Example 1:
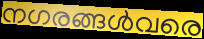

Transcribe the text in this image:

നഗരങ്ങൾവരെ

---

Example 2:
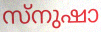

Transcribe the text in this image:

സ്നുഷാ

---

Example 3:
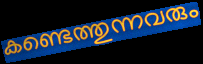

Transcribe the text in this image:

കണ്ടെത്തുന്നവരും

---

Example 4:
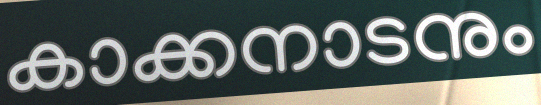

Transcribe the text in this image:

കാക്കനാടനും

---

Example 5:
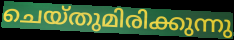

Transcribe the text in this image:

ചെയ്തുമിരിക്കുന്നു